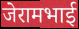
जेरामभाई